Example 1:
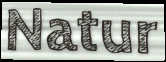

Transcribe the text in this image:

Natur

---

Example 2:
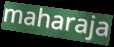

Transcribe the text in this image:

maharaja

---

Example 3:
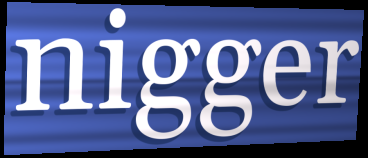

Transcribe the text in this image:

nigger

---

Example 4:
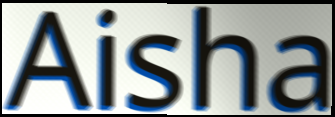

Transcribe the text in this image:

Aisha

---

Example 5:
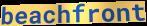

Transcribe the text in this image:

beachfront